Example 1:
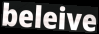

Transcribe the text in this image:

beleive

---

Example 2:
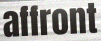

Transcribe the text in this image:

affront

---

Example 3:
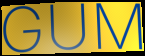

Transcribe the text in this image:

GUM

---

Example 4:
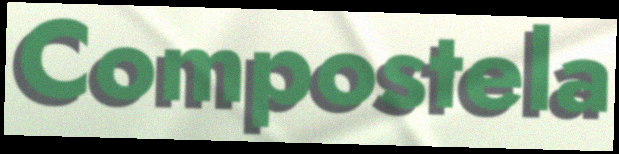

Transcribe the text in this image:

Compostela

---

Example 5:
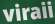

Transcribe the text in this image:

viraii